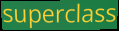
superclass